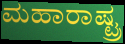
ಮಹಾರಾಷ್ಟ್ರ